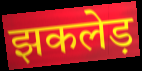
झकलेड़